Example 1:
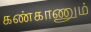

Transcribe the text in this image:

கண்காணும்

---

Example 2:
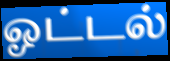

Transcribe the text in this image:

ஓட்டல்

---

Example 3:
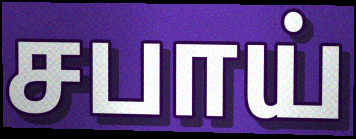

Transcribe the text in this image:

சபாய்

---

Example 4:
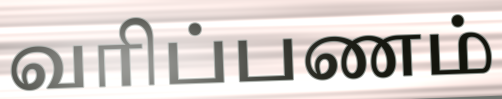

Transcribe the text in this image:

வரிப்பணம்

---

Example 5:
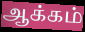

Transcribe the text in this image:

ஆக்கம்